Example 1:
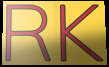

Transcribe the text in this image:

RK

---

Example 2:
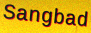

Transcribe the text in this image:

Sangbad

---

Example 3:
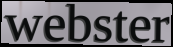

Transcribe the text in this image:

webster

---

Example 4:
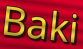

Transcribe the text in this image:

Baki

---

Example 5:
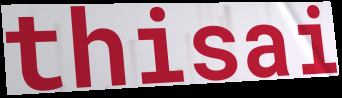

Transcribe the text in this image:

thisai